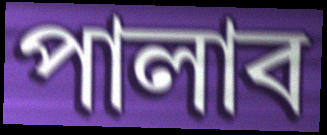
পালাব